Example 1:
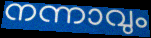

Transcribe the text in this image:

നന്നാവും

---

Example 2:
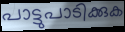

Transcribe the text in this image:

പാട്ടുപാടിക്കുക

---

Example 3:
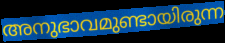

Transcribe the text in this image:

അനുഭാവമുണ്ടായിരുന്ന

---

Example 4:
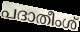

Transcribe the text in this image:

പദാതീംശ്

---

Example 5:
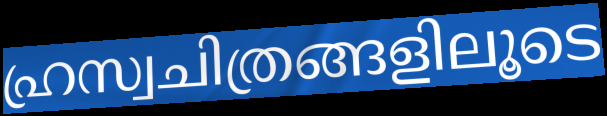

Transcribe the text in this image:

ഹ്രസ്വചിത്രങ്ങളിലൂടെ